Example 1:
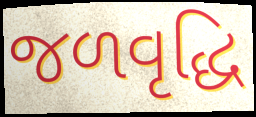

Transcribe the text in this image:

જળવૃદ્ધિ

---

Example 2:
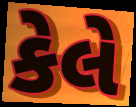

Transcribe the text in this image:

કેલે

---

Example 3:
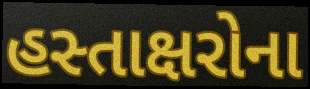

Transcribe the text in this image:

હસ્તાક્ષરોના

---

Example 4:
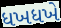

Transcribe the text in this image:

ધખધખે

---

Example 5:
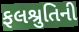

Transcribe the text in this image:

ફલશ્રુતિની